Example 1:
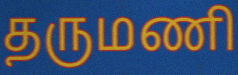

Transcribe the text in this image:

தருமணி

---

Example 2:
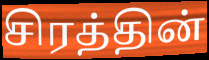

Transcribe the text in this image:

சிரத்தின்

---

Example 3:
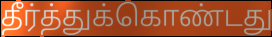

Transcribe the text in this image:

தீர்த்துக்கொண்டது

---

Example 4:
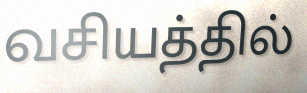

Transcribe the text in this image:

வசியத்தில்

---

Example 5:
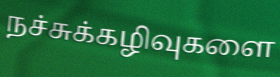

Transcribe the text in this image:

நச்சுக்கழிவுகளை